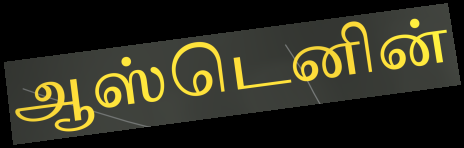
ஆஸ்டெனின்